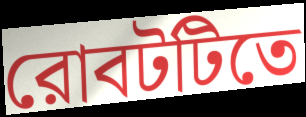
রোবটটিতে